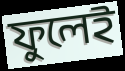
ফুলেই